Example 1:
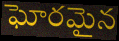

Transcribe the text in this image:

ఘోరమైన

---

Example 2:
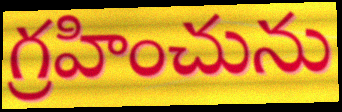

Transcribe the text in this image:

గ్రహించును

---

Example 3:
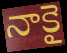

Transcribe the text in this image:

నాకై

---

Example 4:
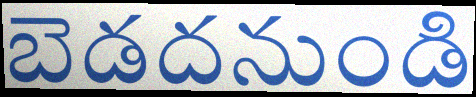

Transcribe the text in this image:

బెడదనుండి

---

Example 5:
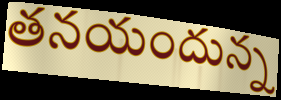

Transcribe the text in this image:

తనయందున్న